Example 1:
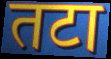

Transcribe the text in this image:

तटा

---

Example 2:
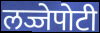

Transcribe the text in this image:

लज्जेपोटी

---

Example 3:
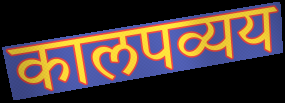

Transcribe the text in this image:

कालपव्यय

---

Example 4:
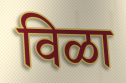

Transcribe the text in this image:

विळा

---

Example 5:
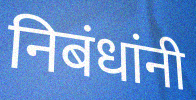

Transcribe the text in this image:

निबंधांनी